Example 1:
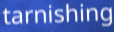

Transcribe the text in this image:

tarnishing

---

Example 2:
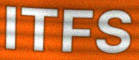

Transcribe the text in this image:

ITFS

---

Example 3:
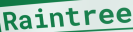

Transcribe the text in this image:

Raintree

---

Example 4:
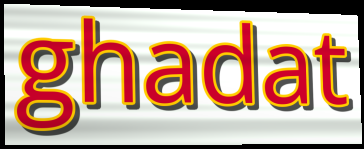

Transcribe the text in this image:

ghadat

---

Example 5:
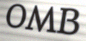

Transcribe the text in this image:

OMB